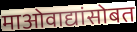
माओवाद्यांसोबत